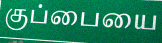
குப்பையை